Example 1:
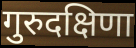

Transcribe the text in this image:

गुरुदक्षिणा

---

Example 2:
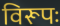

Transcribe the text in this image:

विरूपः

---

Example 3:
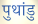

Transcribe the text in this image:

पुथांडु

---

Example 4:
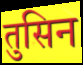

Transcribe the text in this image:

तुसिन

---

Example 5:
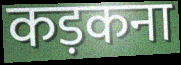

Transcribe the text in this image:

कड़कना